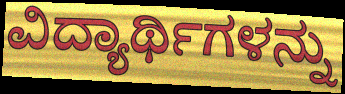
ವಿದ್ಯಾರ್ಥಿಗಳನ್ನು